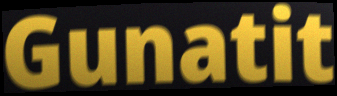
Gunatit